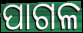
ପାଗଳ